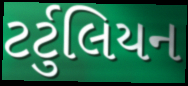
ટર્ટુલિયન